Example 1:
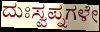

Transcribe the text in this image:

ದುಃಸ್ವಪ್ನಗಳೇ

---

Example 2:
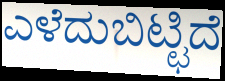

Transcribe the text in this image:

ಎಳೆದುಬಿಟ್ಟಿದೆ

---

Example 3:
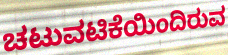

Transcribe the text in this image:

ಚಟುವಟಿಕೆಯಿಂದಿರುವ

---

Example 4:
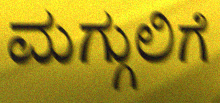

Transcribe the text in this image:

ಮಗ್ಗುಲಿಗೆ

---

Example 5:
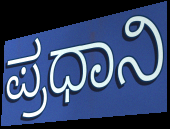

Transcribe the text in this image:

ಪ್ರಧಾನಿ